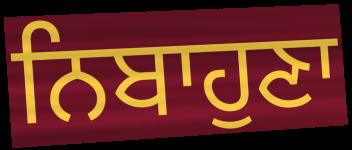
ਨਿਬਾਹੁਣਾ